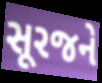
સૂરજને